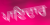
ਪਾਇਦਾਰ